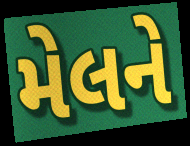
મેલને